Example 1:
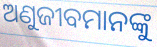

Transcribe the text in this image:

ଅଣୁଜୀବମାନଙ୍କୁ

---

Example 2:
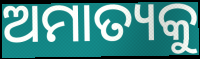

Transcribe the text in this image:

ଅମାତ୍ୟକୁ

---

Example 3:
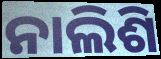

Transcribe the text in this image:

ନାଲିଶି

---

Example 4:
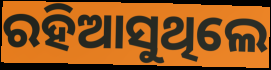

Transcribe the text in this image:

ରହିଆସୁଥିଲେ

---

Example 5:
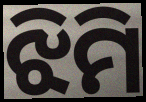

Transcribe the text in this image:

ଝିମି